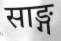
साङ्ग